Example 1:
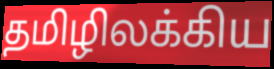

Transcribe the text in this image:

தமிழிலக்கிய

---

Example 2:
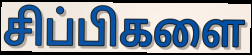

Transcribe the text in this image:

சிப்பிகளை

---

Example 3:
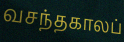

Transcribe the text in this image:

வசந்தகாலப்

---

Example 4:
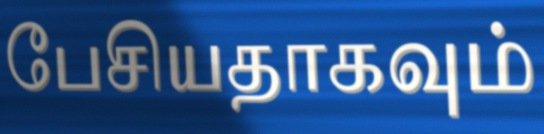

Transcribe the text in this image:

பேசியதாகவும்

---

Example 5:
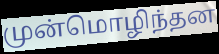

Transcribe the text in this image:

முன்மொழிந்தன